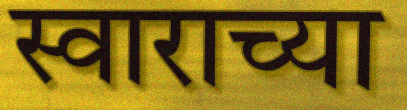
स्वाराच्या